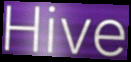
Hive